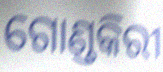
ଗୋଣ୍ଡକିରୀ